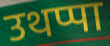
उथप्पा